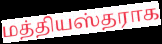
மத்தியஸ்தராக